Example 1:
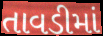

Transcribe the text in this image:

તાવડીમાં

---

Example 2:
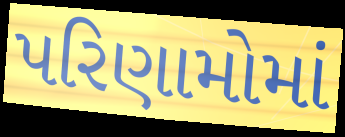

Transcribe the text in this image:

પરિણામોમાં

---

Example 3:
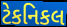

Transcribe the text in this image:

ટેકનિકલ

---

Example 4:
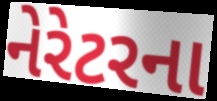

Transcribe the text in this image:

નેરેટરના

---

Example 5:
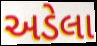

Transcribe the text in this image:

અડેલા